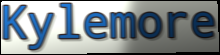
Kylemore